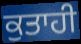
ਕੁਤਾਹੀ